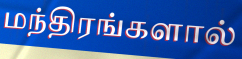
மந்திரங்களால்